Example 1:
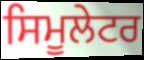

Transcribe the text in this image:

ਸਿਮੂਲੇਟਰ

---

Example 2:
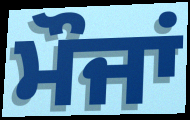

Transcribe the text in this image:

ਮੌਜਾਂ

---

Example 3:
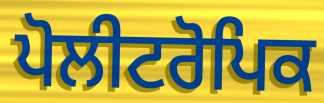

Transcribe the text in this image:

ਪੋਲੀਟਰੋਪਿਕ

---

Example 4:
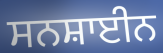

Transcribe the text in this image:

ਸਨਸ਼ਾਈਨ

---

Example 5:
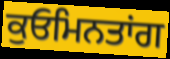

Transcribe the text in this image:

ਕੁਓਮਿਨਤਾਂਗ